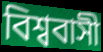
বিশ্ববাসী